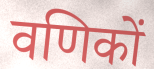
वणिकों